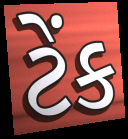
ટેંક